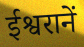
ईश्वरानें